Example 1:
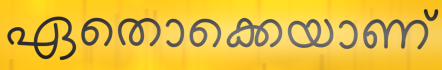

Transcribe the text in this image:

ഏതൊക്കെയാണ്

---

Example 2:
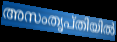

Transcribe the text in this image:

അസംതൃപ്തിയിൽ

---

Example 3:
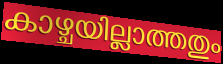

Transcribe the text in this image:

കാഴ്ചയില്ലാത്തതും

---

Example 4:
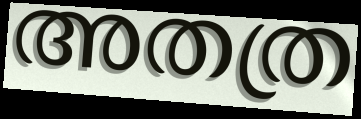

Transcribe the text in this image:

അതത്ര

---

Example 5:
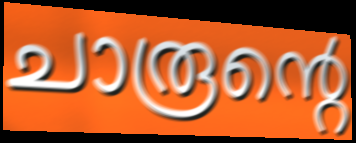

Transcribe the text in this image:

ചാരൂന്റെ